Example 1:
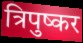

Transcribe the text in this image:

त्रिपुष्कर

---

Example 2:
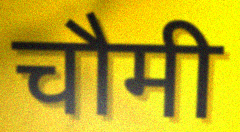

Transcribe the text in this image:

चौमी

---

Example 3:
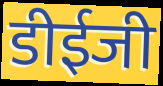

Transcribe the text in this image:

डीईजी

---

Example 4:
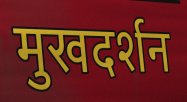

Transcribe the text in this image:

मुखदर्शन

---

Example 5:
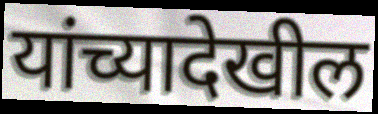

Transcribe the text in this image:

यांच्यादेखील